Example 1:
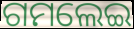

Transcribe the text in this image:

ଗମଲେଇ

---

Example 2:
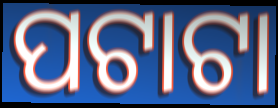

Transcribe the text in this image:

ପଟାଟା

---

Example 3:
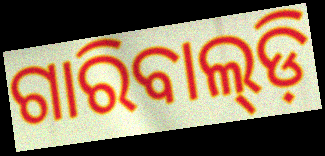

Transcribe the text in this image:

ଗାରିବାଲ୍‌ଡ଼ି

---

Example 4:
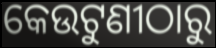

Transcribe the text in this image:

କେଉଟୁଣୀଠାରୁ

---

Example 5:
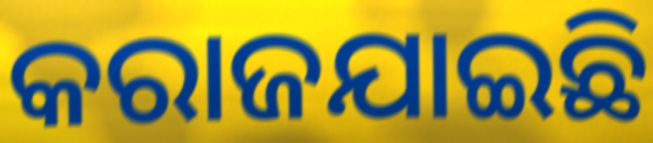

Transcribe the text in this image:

କରାଜଯାଇଛି